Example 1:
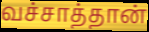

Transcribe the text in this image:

வச்சாத்தான்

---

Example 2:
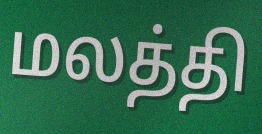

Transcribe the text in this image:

மலத்தி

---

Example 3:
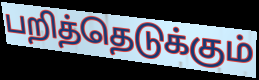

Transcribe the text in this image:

பறித்தெடுக்கும்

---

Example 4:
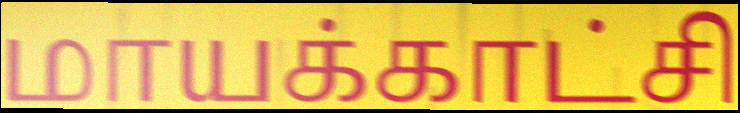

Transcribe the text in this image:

மாயக்காட்சி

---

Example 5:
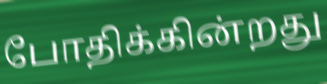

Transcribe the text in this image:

போதிக்கின்றது